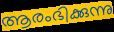
ആരംഭിക്കുന്നു